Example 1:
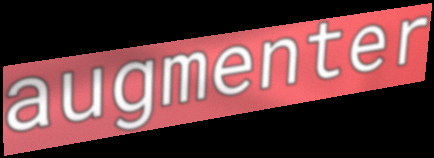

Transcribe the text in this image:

augmenter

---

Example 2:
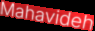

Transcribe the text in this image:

Mahavideh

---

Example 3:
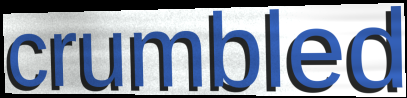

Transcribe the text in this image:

crumbled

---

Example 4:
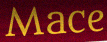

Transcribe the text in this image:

Mace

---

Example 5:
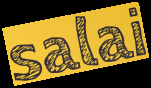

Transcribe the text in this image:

salai